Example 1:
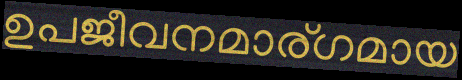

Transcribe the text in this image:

ഉപജീവനമാര്ഗമായ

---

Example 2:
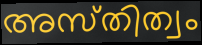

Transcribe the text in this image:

അസ്‌തിത്വം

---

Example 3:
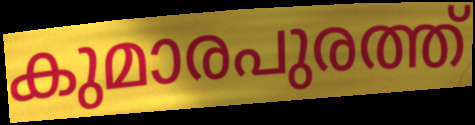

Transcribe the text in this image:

കുമാരപുരത്ത്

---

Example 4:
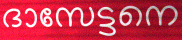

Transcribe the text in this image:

ദാസേട്ടനെ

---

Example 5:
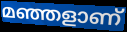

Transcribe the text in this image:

മഞ്ഞളാണ്